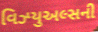
વિઝ્યુઅલ્સની